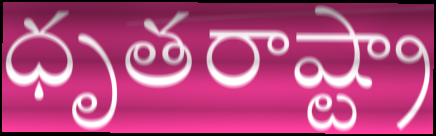
ధృతరాష్ట్రా